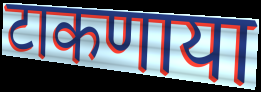
टाकणाया